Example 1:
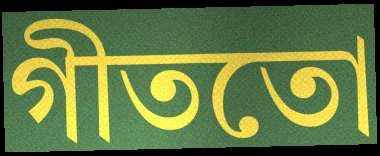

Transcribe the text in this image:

গীততো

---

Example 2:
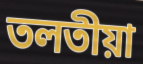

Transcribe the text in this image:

তলতীয়া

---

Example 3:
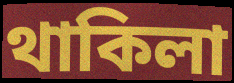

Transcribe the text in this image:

থাকিলা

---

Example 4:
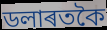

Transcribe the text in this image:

ডলাৰতকৈ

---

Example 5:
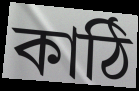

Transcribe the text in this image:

কাঠি